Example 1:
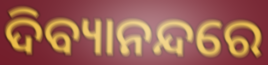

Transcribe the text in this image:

ଦିବ୍ୟାନନ୍ଦରେ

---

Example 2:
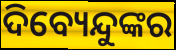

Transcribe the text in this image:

ଦିବ୍ୟେନ୍ଦୁଙ୍କର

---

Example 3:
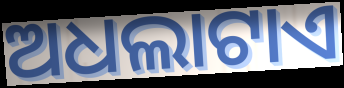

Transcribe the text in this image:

ଅଧଲାଟାଏ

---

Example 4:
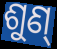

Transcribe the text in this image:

ଶୁଣ୍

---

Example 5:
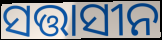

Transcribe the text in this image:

ସତ୍ତାସୀନ